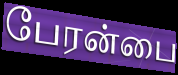
பேரன்பை